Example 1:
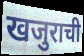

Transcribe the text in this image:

खजुराची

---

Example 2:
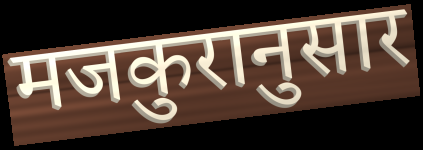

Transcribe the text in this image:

मजकुरानुसार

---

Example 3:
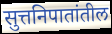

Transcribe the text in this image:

सुत्तनिपातांतील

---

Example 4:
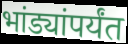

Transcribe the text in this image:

भांड्यांपर्यंत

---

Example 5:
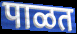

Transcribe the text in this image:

पाळत